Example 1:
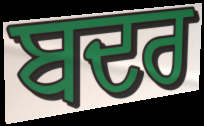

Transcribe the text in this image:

ਬਦਰ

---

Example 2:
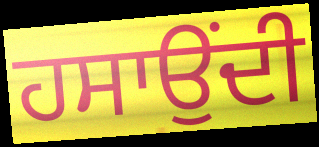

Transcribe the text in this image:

ਹਸਾਉਂਦੀ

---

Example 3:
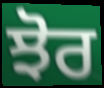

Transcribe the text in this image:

ਝੋਰ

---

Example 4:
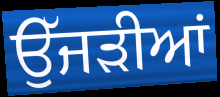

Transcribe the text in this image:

ਉੱਜੜੀਆਂ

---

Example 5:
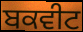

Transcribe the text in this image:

ਬਕਵੀਟ